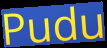
Pudu